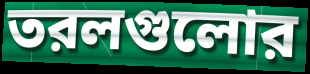
তরলগুলোর